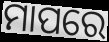
ମାପରେ